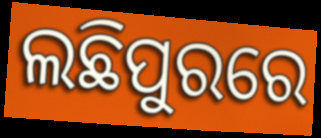
ଲଛିପୁରରେ